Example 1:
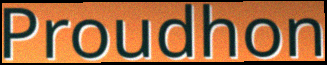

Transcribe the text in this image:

Proudhon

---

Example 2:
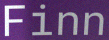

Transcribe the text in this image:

Finn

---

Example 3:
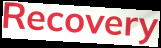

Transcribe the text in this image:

Recovery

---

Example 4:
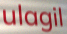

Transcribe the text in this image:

ulagil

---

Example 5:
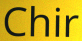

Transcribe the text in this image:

Chir